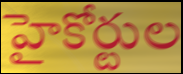
హైకోర్టుల